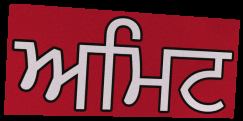
ਅਮਿਟ